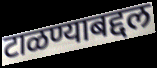
टाळण्याबद्दल